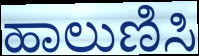
ಹಾಲುಣಿಸಿ